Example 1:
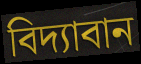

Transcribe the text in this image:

বিদ্যাবান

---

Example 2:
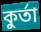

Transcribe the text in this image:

কুৰ্তা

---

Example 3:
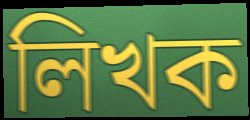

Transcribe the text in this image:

লিখক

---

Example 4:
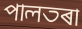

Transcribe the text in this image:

পালতৰা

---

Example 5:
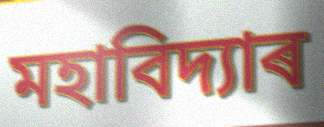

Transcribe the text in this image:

মহাবিদ্যাৰ